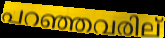
പറഞ്ഞവരില്